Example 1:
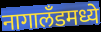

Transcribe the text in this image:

नागालॅंडमध्ये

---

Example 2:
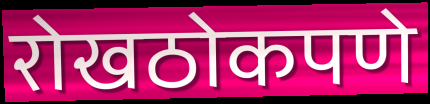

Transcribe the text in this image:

रोखठोकपणे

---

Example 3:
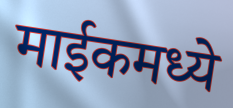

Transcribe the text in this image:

माईकमध्ये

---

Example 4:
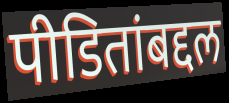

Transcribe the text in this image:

पीडितांबद्दल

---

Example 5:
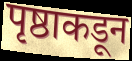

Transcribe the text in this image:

पृष्ठाकडून